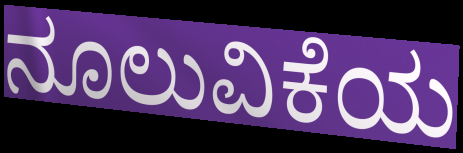
ನೂಲುವಿಕೆಯ